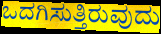
ಒದಗಿಸುತ್ತಿರುವುದು